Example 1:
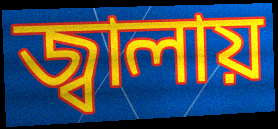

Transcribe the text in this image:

জ্বালায়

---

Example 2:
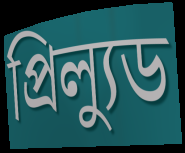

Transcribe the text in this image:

প্রিল্যুড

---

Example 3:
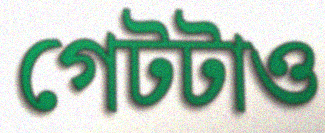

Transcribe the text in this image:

গেটটাও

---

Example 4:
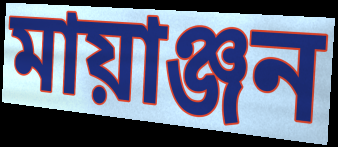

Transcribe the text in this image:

মায়াঞ্জন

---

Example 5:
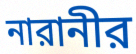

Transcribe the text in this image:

নারানীর